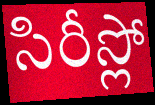
సిరీస్లో